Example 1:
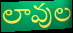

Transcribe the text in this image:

లావుల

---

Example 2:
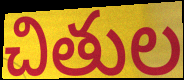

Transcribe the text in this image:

చితుల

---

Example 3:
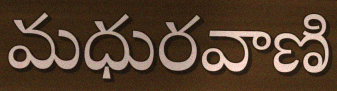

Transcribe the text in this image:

మధురవాణి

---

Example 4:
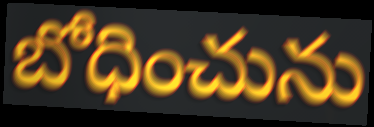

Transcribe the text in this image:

బోధించును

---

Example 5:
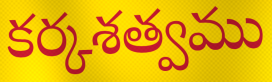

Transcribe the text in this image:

కర్కశత్వము